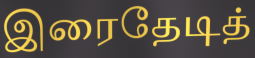
இரைதேடித்